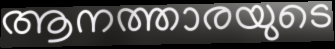
ആനത്താരയുടെ